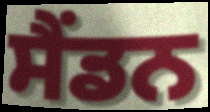
ਸੈਂਡਨ